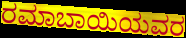
ರಮಾಬಾಯಿಯವರ